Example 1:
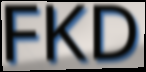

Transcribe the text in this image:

FKD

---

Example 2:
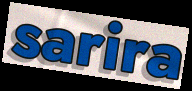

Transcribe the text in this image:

sarira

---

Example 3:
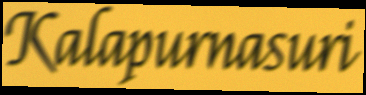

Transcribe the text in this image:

Kalapurnasuri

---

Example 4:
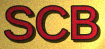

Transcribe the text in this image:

SCB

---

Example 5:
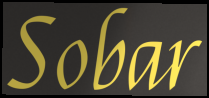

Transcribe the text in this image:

Sobar